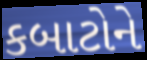
કબાટોને